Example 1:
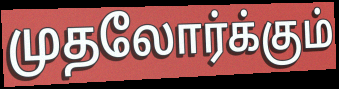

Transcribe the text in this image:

முதலோர்க்கும்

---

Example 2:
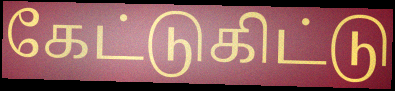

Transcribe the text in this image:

கேட்டுகிட்டு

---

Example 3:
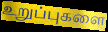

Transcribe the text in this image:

உறுப்புகளை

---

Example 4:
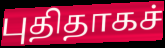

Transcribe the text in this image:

புதிதாகச்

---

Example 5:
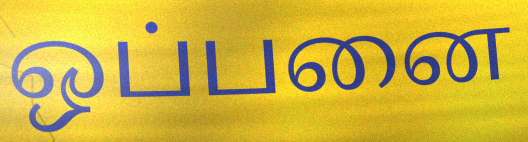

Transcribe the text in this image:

ஒப்பனை